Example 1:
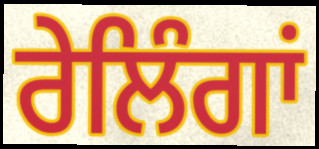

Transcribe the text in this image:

ਰੇਲਿੰਗਾਂ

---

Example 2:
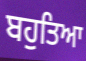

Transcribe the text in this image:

ਬਹੁਤਿਆ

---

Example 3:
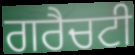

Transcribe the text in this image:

ਗਰੈਚਟੀ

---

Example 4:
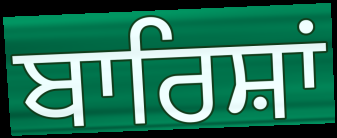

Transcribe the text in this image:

ਬਾਰਿਸ਼ਾਂ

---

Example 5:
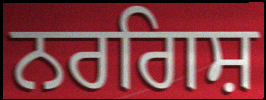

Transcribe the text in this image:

ਨਰਗਿਸ਼